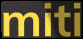
miti